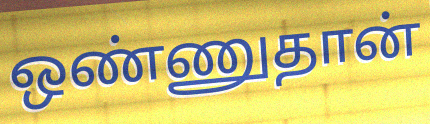
ஒண்ணுதான்